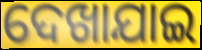
ଦେଖାଯାଇ